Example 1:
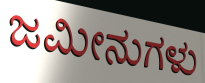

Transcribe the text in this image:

ಜಮೀನುಗಳು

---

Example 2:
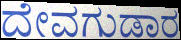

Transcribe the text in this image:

ದೇವಗುಡಾರ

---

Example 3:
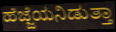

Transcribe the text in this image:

ಹೆಜ್ಜೆಯನಿಡುತ್ತಾ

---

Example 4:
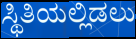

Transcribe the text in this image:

ಸ್ಥಿತಿಯಲ್ಲಿಡಲು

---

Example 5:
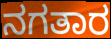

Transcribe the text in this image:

ನಗತಾರ